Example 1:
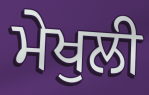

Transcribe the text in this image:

ਮੇਖੁਲੀ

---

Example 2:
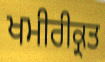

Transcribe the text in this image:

ਖਮੀਰੀਕ੍ਰਤ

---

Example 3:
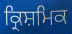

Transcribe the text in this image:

ਕ੍ਰਿਸ਼ਮਿਕ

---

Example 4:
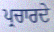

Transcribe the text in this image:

ਪ੍ਰਚਾਰਦੇ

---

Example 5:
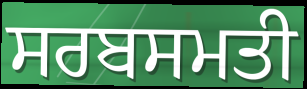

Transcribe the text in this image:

ਸਰਬਸਮਤੀ